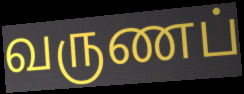
வருணப்